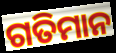
ଗତିମାନ